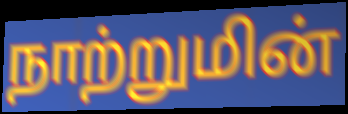
நாற்றுமின்